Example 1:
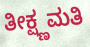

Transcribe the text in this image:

ತೀಕ್ಷ್ಣಮತಿ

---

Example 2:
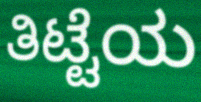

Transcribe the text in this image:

ತಿಟ್ಟೆಯ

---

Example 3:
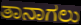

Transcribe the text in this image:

ತಾನಾಗಲು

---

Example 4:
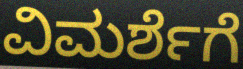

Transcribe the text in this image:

ವಿಮರ್ಶೆಗೆ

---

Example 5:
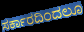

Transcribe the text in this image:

ಸರ್ಕಾರದಿಂದಲೂ